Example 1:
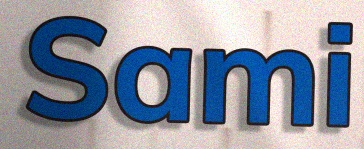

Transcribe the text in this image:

Sami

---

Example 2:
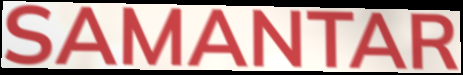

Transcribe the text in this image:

SAMANTAR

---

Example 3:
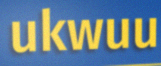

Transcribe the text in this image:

ukwuu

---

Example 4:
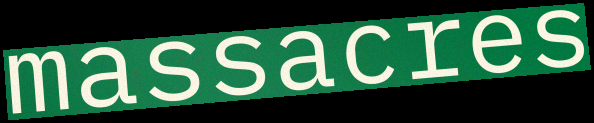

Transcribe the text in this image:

massacres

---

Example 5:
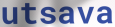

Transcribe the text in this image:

utsava